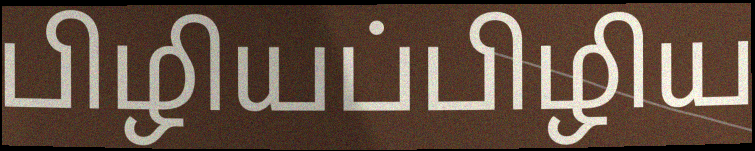
பிழியப்பிழிய